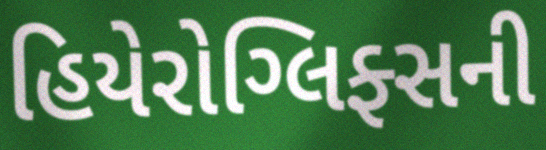
હિયેરોગ્લિફ્સની